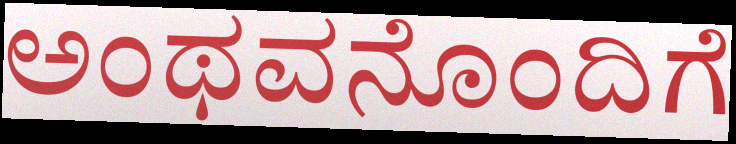
ಅಂಥವನೊಂದಿಗೆ